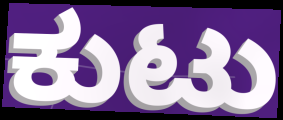
ಕುಟು